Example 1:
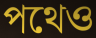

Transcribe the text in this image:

পথেও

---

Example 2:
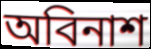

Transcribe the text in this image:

অবিনাশ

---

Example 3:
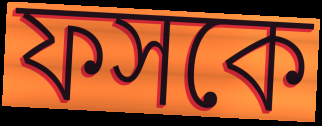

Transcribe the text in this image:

ফসকে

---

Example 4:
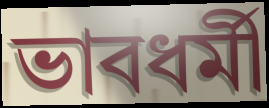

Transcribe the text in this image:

ভাবধর্মী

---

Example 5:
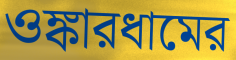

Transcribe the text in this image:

ওঙ্কারধামের